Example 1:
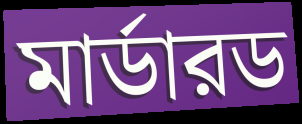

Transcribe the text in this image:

মার্ডারড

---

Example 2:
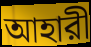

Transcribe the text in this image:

আহারী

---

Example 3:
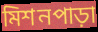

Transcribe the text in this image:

মিশনপাড়া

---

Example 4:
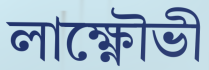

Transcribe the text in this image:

লাক্ষ্ণৌভী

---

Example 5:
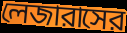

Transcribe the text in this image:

লেজারাসের